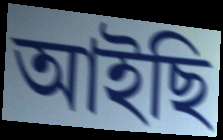
আইছি